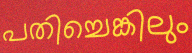
പതിച്ചെങ്കിലും